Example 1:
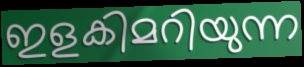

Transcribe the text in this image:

ഇളകിമറിയുന്ന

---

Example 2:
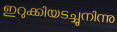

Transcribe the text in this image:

ഇറുക്കിയടച്ചുനിന്നു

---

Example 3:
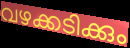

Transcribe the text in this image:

വഴക്കടിക്കും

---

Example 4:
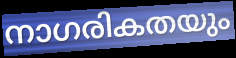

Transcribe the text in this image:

നാഗരികതയും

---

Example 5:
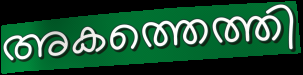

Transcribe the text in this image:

അകത്തെത്തി